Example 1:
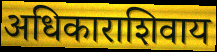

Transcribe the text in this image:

अधिकाराशिवाय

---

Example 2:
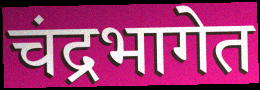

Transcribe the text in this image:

चंद्रभागेत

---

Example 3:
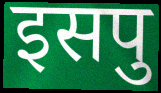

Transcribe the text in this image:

इसपु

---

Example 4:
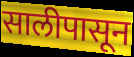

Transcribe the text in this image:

सालीपासून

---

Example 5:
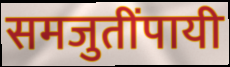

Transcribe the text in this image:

समजुतींपायी